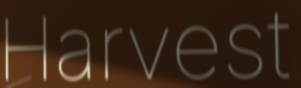
Harvest